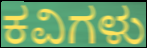
ಕವಿಗಳು